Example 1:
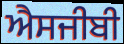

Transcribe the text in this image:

ਐਸਜੀਬੀ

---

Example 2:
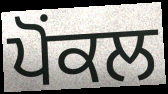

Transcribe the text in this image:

ਪੋਂਕਲ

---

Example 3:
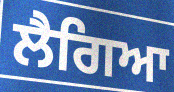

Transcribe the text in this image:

ਲੈਗਿਆ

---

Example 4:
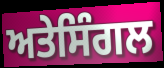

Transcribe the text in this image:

ਅਤੇਸਿੰਗਲ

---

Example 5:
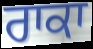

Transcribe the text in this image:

ਰਾਕਾ